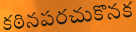
కఠినపరచుకొనక